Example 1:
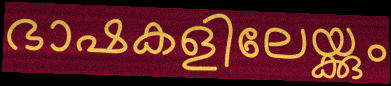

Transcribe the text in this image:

ഭാഷകളിലേയ്ക്കും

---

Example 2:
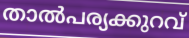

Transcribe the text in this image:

താൽപര്യക്കുറവ്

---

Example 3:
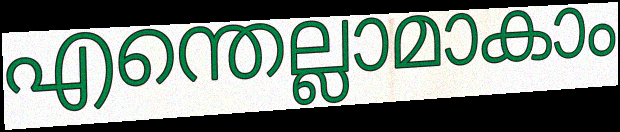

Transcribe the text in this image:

എന്തെല്ലാമാകാം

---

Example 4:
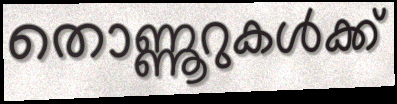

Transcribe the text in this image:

തൊണ്ണൂറുകൾക്ക്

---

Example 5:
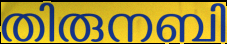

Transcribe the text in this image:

തിരുനബി